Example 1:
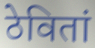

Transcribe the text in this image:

ठेवितां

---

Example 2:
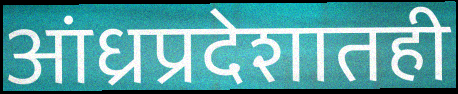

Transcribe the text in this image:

आंध्रप्रदेशातही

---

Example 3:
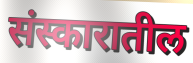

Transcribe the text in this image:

संस्कारातील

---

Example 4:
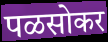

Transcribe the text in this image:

पळसोकर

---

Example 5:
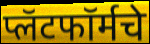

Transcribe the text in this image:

प्लॅटफॉर्मचे